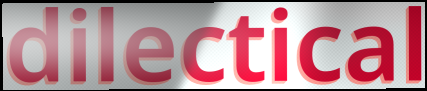
dilectical